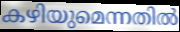
കഴിയുമെന്നതിൽ